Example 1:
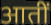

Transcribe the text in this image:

आतीं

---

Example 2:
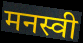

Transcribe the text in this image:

मनस्वी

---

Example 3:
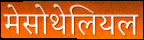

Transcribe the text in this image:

मेसोथेलियल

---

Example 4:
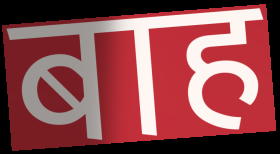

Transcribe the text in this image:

बाह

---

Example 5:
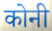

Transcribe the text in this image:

कोनी